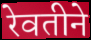
रेवतीने